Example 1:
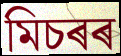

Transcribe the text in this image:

মিচৰৰ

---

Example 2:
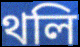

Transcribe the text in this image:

থলি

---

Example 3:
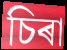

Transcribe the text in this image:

চিৰা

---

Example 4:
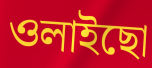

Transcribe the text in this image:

ওলাইছো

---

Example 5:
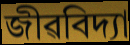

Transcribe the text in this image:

জীৱবিদ্যা